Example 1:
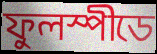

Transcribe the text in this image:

ফুলস্পীডে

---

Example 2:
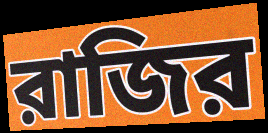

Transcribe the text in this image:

রাজির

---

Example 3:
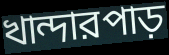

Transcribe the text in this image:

খান্দারপাড়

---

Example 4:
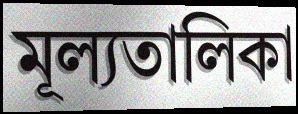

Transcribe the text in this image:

মূল্যতালিকা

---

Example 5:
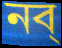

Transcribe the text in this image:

নব্